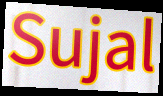
Sujal